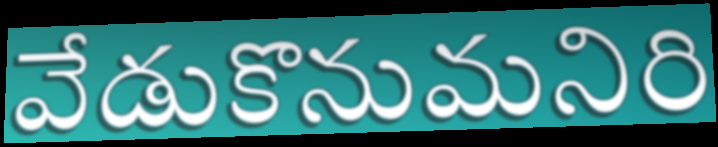
వేడుకొనుమనిరి